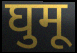
घुमू